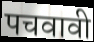
पचवावी